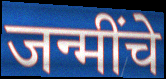
जन्मींचे